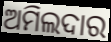
ଅମିଲଦାର